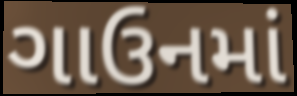
ગાઉનમાં